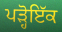
ਪੜ੍ਹੋਇੱਕ